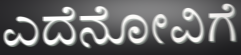
ಎದೆನೋವಿಗೆ